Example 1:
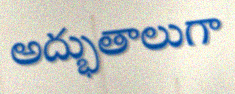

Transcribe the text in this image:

అద్భుతాలుగా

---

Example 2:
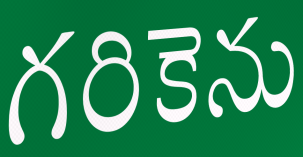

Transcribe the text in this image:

గరికెను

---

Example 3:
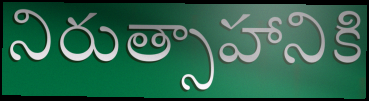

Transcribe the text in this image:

నిరుత్సాహానికి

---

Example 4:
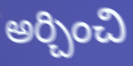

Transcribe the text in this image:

అర్చించి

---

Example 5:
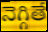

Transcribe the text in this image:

నెగ్గితే